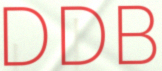
DDB